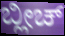
ಬ್ಲೀಚ್